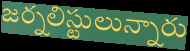
జర్నలిస్టులున్నారు